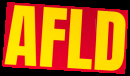
AFLD